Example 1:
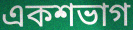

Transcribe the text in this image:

একশভাগ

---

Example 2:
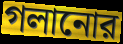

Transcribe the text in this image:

গলানোর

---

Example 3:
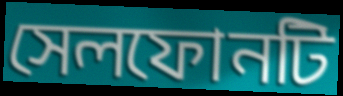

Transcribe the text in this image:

সেলফোনটি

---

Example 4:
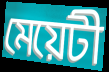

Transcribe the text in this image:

মেয়েটী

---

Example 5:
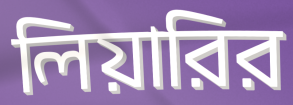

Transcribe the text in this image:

লিয়ারির